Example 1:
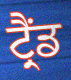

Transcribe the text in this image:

ਟ੍ਰੈਂਡ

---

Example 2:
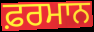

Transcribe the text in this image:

ਫ਼ਰਮਾਨ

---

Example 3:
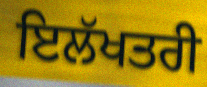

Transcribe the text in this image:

ਇਲੱਖਤਰੀ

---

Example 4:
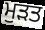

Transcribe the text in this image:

ਮੁੜਤ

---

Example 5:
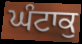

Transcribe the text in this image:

ਘੰਟਾਕੁ